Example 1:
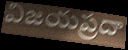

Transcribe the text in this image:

విజయప్రదా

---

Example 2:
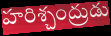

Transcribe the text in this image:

హరిశ్చంద్రుడు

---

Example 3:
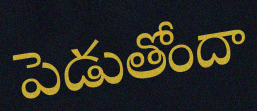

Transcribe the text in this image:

పెడుతోందా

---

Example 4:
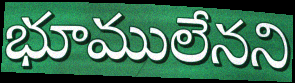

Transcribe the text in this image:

భూములేనని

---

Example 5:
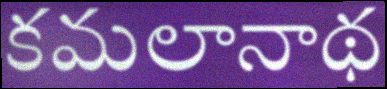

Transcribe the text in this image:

కమలానాథ